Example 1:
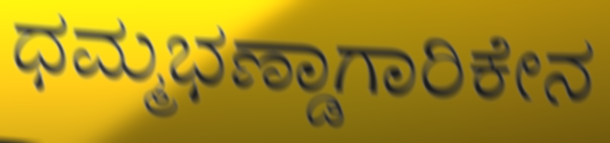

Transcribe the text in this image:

ಧಮ್ಮಭಣ್ಡಾಗಾರಿಕೇನ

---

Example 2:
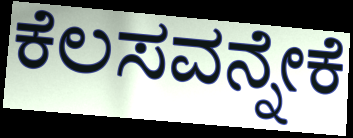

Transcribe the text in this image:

ಕೆಲಸವನ್ನೇಕೆ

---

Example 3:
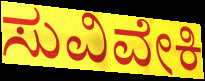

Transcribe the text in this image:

ಸುವಿವೇಕಿ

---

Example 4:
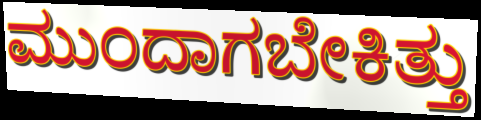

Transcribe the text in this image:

ಮುಂದಾಗಬೇಕಿತ್ತು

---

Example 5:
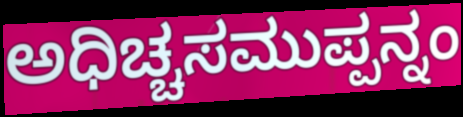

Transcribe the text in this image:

ಅಧಿಚ್ಚಸಮುಪ್ಪನ್ನಂ